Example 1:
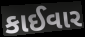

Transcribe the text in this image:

કાઈવાર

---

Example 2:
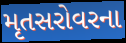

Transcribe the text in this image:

મૃતસરોવરના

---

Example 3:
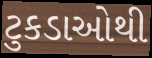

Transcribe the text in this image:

ટુકડાઓથી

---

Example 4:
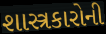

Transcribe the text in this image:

શાસ્ત્રકારોની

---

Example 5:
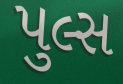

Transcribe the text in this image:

પુલ્સ